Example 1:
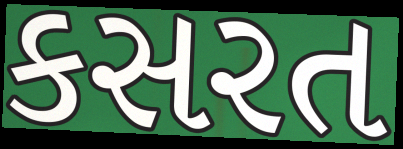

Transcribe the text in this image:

કસરત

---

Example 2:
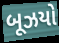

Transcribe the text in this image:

બૂઝયો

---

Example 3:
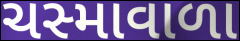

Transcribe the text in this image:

ચસ્માવાળા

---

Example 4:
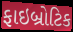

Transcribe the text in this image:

ફાઇબ્રોટિક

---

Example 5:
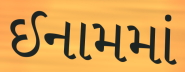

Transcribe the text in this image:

ઈનામમાં